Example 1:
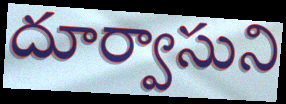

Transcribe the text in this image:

దూర్వాసుని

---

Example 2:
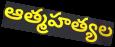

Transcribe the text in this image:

ఆత్మహత్యల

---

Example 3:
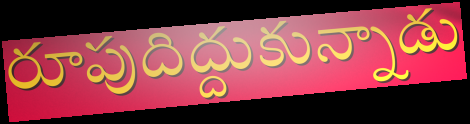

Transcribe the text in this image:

రూపుదిద్దుకున్నాడు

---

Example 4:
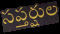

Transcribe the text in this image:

సప్తర్షుల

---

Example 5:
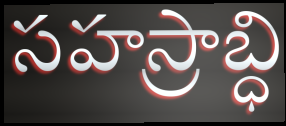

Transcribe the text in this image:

సహస్రాబ్ధి